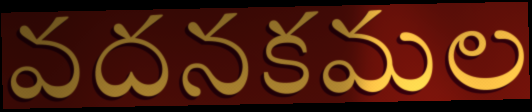
వదనకమల